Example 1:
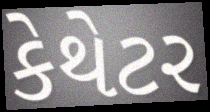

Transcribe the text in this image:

કેથેટર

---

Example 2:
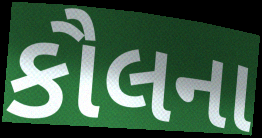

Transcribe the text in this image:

કૌલના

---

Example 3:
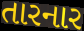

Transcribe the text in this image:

તારનાર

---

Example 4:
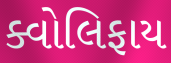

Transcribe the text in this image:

ક્વોલિફાય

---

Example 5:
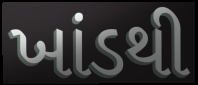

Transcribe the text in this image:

ખાંડથી